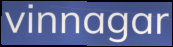
vinnagar